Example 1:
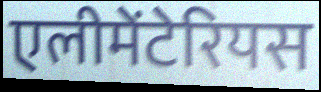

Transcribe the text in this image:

एलीमेंटेरियस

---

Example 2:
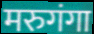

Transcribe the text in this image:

मरुगंगा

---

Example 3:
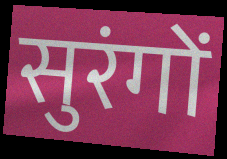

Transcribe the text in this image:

सुरंगों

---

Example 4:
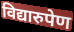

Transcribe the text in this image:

विद्यारुपेण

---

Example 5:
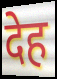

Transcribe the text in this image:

देह